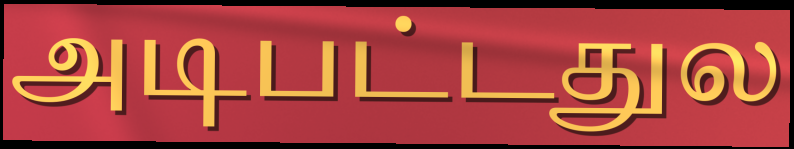
அடிபட்டதுல